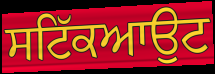
ਸਟਿੱਕਆਉਟ